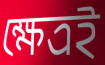
ক্ষেত্রই